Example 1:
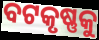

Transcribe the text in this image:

ବଟକୃଷ୍ଣକୁ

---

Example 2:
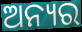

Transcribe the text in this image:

ଅନ୍ୟର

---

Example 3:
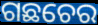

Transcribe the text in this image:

ଗଛଚେର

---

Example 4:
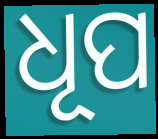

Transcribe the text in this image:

ଧୂପ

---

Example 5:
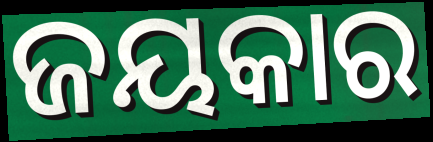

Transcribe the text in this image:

ଜୟକାର